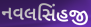
નવલસિંહજી